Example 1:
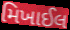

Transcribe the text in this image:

મિખાઈલ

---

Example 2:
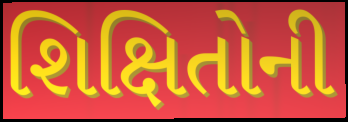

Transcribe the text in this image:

શિક્ષિતોની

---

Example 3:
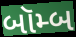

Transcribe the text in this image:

બૉમ્બ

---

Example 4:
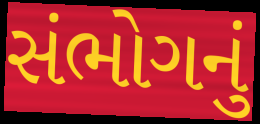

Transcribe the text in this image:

સંભોગનું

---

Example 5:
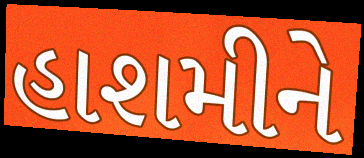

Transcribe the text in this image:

હાશમીને